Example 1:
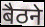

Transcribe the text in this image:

बैठने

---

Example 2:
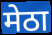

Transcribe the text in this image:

मेठा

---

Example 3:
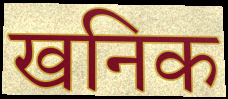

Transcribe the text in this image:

खनिक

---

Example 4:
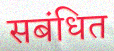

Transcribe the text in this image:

सबंधित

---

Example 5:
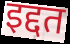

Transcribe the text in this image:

इद्दत